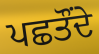
ਪਛਤੌਂਦੇ